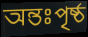
অন্তঃপৃষ্ঠ